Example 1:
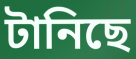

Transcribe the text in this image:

টানিছে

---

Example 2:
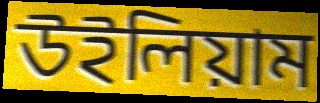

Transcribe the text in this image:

উইলিয়াম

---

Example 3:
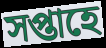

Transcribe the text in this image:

সপ্তাহে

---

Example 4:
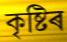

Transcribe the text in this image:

কৃষ্টিৰ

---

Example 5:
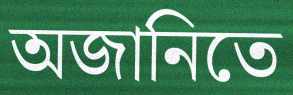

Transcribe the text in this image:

অজানিতে